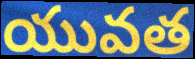
యువత